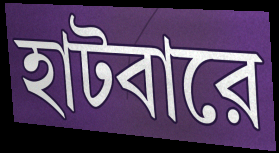
হাটবারে